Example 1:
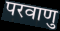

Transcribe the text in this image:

परवाणु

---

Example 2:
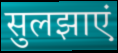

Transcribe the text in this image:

सुलझाएं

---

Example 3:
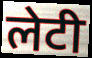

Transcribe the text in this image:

लेटी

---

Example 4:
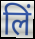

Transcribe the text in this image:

लिं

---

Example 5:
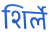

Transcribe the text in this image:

शिर्ले